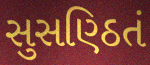
સુસણ્ઠિતં